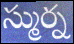
స్ముర్న